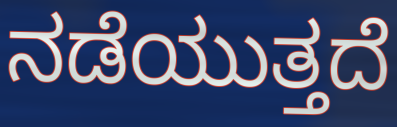
ನಡೆಯುತ್ತದೆ